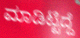
ಮಾಡಿಟ್ಟಿದ್ದೆ